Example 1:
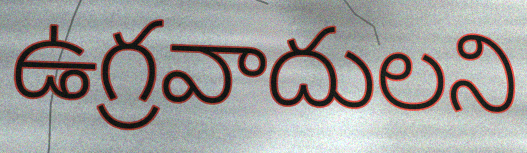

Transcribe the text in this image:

ఉగ్రవాదులని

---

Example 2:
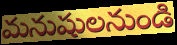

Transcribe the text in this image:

మనుషులనుండి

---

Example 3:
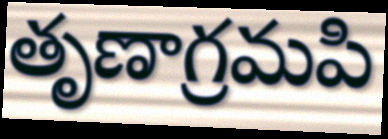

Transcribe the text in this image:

తృణాగ్రమపి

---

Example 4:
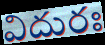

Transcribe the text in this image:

విదురః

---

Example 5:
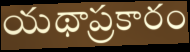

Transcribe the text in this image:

యథాప్రకారం